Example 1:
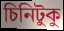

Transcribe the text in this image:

চিনিটুকু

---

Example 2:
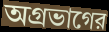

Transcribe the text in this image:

অগ্রভাগের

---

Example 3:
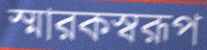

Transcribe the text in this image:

স্মারকস্বরূপ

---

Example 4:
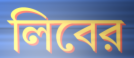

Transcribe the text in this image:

লিবের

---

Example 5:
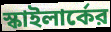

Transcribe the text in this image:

স্কাইলার্কের